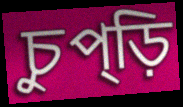
চুপ্‌ড়ি